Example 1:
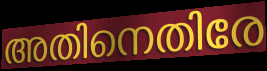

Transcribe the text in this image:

അതിനെതിരേ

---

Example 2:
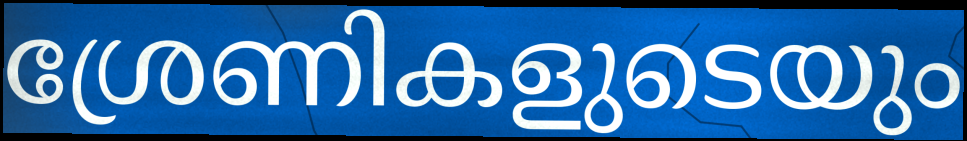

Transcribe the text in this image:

ശ്രേണികളുടെയും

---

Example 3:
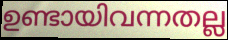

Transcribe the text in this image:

ഉണ്ടായിവന്നതല്ല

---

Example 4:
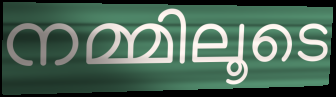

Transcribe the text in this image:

നമ്മിലൂടെ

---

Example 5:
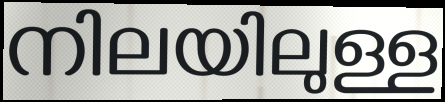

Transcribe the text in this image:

നിലയിലുള്ള